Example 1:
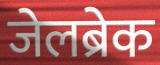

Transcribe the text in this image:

जेलब्रेक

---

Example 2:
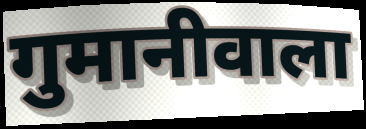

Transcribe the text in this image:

गुमानीवाला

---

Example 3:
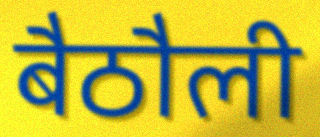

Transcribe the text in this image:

बैठौली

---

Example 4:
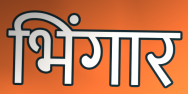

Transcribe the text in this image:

भिंगार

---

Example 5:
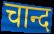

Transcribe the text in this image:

चान्द